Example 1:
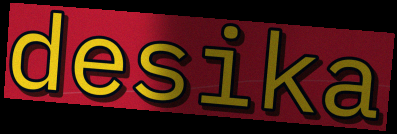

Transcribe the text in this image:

desika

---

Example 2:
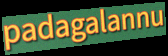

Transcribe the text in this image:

padagalannu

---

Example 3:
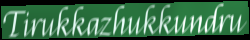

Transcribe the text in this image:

Tirukkazhukkundru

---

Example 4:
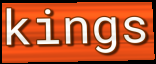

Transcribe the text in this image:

kings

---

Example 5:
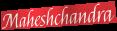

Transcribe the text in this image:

Maheshchandra